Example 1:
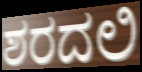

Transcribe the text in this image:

ಶರದಲಿ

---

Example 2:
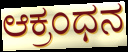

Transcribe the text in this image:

ಆಕ್ರಂಧನ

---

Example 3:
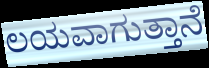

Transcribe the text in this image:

ಲಯವಾಗುತ್ತಾನೆ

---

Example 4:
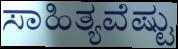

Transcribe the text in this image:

ಸಾಹಿತ್ಯವೆಷ್ಟು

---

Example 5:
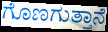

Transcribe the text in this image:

ಗೊಣಗುತ್ತಾನೆ